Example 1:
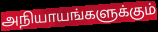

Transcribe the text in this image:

அநியாயங்களுக்கும்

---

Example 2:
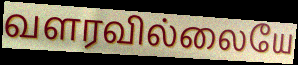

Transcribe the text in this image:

வளரவில்லையே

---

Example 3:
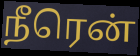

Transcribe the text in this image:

நீரென்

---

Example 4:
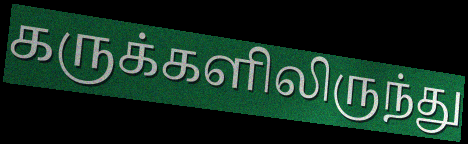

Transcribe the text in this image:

கருக்களிலிருந்து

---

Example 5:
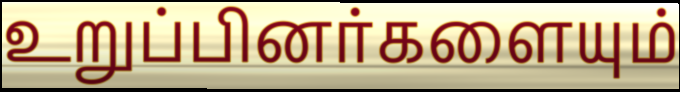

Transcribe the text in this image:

உறுப்பினர்களையும்